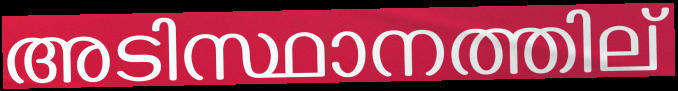
അടിസ്ഥാനത്തില്